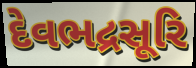
દેવભદ્રસૂરિ